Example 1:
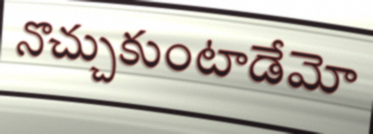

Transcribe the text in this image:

నొచ్చుకుంటాడేమో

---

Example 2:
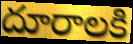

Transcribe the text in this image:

దూరాలకి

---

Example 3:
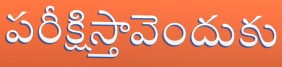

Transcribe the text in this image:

పరీక్షిస్తావెందుకు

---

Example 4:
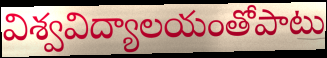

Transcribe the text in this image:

విశ్వవిద్యాలయంతోపాటు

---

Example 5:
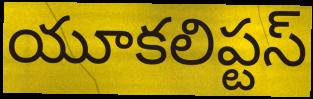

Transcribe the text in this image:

యూకలిప్టస్